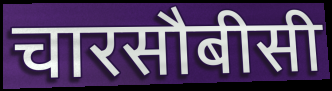
चारसौबीसी